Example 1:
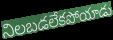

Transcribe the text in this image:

నిలబడలేకపోయాడు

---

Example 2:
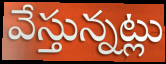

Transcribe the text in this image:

వేస్తున్నట్లు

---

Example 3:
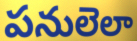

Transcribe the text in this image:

పనులెలా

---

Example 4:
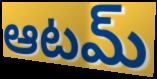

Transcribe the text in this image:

ఆటమ్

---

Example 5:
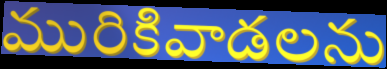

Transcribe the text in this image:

మురికివాడలను